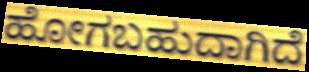
ಹೋಗಬಹುದಾಗಿದೆ